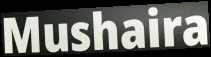
Mushaira